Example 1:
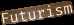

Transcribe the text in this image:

Futurism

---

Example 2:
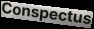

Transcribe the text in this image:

Conspectus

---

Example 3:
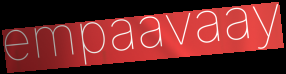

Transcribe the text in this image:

empaavaay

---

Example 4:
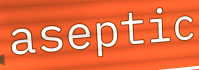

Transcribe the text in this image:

aseptic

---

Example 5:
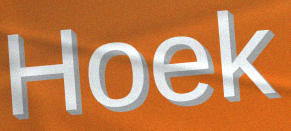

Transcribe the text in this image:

Hoek